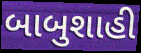
બાબુશાહી